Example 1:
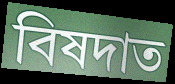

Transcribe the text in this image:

বিষদাত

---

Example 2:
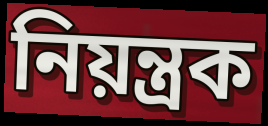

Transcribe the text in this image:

নিয়ন্ত্রক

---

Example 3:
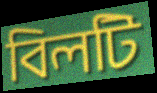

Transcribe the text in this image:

বিলটি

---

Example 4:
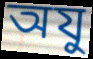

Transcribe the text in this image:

অযু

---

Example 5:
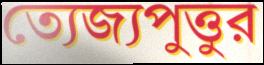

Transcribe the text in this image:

ত্যেজ্যপুত্তুর